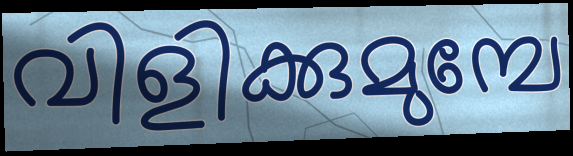
വിളിക്കുമുമ്പേ